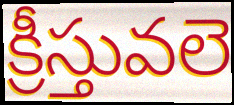
క్రీస్తువలె